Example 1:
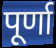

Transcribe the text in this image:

पूर्णा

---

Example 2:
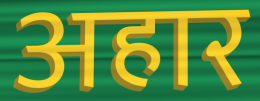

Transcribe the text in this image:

अहार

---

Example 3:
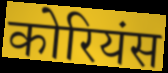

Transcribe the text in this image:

कोरियंस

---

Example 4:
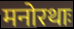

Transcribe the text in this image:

मनोरथाः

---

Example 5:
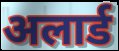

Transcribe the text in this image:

अलार्ड